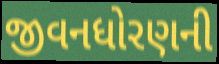
જીવનધોરણની